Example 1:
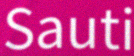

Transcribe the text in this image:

Sauti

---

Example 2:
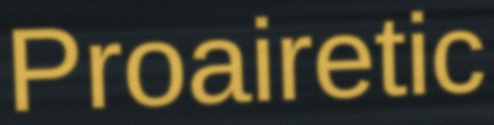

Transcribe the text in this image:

Proairetic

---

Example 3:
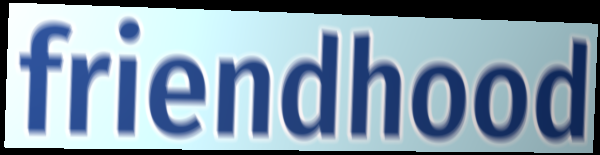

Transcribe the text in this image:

friendhood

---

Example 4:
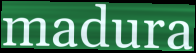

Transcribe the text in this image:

madura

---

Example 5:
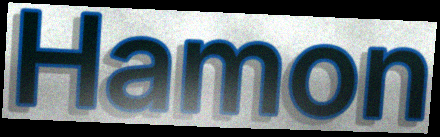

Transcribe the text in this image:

Hamon